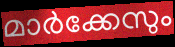
മാർക്കേസും